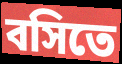
বসিতে